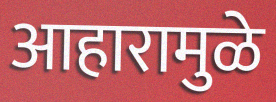
आहारामुळे